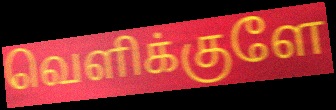
வெளிக்குளே